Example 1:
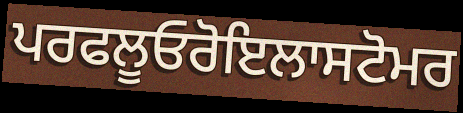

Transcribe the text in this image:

ਪਰਫਲੂਓਰੋਇਲਾਸਟੋਮਰ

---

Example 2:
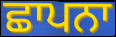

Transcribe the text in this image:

ਛਾਪਨਾ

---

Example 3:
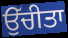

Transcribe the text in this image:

ਉੱਚੀਤਾ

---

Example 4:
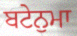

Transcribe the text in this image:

ਬਟੇਨੁਮਾ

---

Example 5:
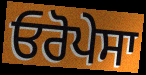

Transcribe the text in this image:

ਓਰੋਪੇਸਾ